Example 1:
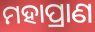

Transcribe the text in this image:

ମହାପ୍ରାଣ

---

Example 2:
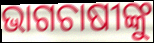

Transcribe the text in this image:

ଭାଗଚାଷୀଙ୍କୁ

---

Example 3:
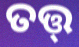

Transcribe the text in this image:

ତତ୍ତ୍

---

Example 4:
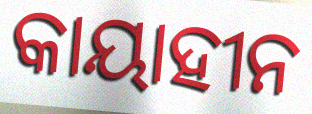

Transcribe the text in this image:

କାୟାହୀନ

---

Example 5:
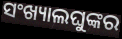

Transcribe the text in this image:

ସଂଖ୍ୟାଲଘୁଙ୍କର